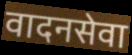
वादनसेवा